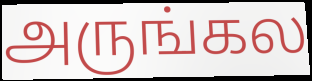
அருங்கல